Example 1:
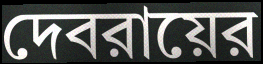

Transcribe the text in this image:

দেবরায়ের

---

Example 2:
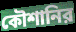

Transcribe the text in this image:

কৌশানির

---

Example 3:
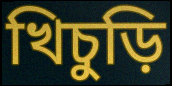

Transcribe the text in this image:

খিচুড়ি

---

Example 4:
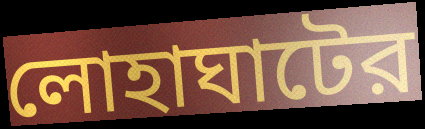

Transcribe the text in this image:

লোহাঘাটের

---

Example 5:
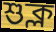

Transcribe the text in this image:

শুক্ল